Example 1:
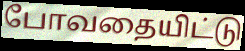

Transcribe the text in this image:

போவதையிட்டு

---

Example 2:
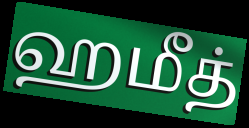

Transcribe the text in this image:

ஹமீத்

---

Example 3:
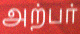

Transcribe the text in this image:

அற்பர்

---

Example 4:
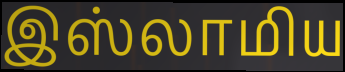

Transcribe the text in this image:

இஸ்லாமிய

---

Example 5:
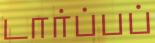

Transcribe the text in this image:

டார்ப்பப்